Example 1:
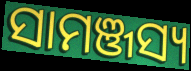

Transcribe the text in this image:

ସାମଞ୍ଜସ୍ୟ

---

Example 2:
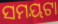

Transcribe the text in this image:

ସମୟଟା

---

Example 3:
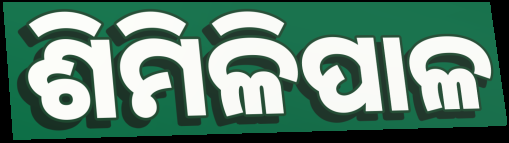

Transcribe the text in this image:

ଶିମିଳିପାଳ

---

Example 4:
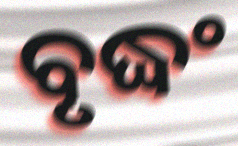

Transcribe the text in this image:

ବୃଦ୍ଧଂ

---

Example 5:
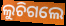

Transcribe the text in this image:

ଲୁଚିଗଲେ